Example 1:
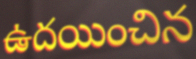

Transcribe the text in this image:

ఉదయించిన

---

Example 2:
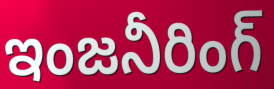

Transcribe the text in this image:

ఇంజనీరింగ్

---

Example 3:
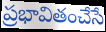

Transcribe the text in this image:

ప్రభావితంచేసే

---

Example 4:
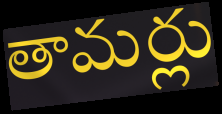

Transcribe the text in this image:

తామర్లు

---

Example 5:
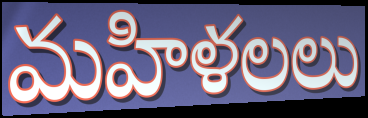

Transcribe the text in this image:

మహిళలలు